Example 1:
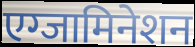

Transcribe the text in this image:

एग्‍जामिनेशन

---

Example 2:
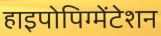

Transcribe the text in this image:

हाइपोपिग्मेंटेशन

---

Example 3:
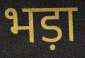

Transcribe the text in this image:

भड़ा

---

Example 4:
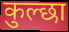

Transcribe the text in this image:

कुल्छा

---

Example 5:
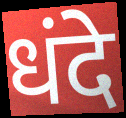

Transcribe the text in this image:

धंदे